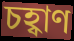
চহ্বাণ